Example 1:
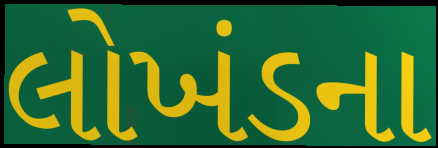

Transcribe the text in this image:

લોખંડના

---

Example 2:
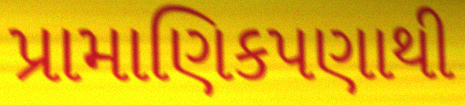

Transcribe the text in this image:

પ્રામાણિકપણાથી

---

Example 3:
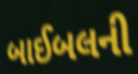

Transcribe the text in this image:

બાઈબલની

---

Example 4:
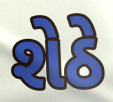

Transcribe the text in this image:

શેઠે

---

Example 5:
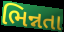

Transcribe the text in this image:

ભિન્નતા